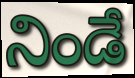
నిండే